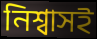
নিশ্বাসই